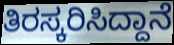
ತಿರಸ್ಕರಿಸಿದ್ದಾನೆ